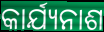
କାର୍ଯ୍ୟନାଶ